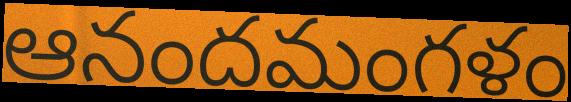
ఆనందమంగళం